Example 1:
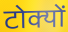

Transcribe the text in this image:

टोक्यों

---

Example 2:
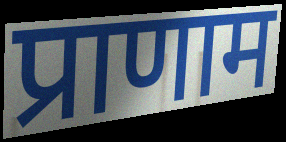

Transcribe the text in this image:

प्राणाम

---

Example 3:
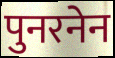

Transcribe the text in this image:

पुनरनेन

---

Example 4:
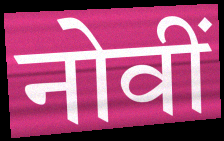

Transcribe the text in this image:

नोवीं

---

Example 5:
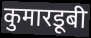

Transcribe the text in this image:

कुमारडूबी